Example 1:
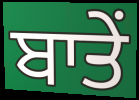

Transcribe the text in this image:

ਬਾਤੇਂ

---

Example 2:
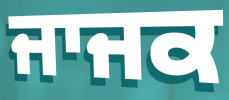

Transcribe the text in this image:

ਜਾਜਕ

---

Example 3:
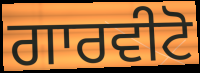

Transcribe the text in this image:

ਗਾਰਵੀਟੋ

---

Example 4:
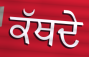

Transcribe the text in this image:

ਕੱਥਦੇ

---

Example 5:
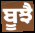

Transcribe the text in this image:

ਬੂਝੈ